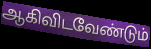
ஆகிவிடவேண்டும்